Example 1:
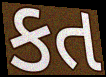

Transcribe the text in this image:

કત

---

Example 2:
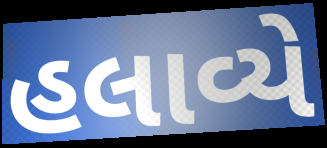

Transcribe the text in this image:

હલાવ્યે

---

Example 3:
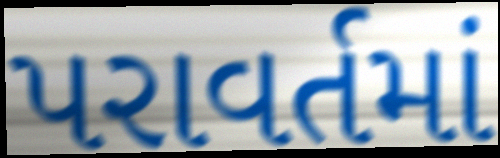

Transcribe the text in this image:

પરાવર્તમાં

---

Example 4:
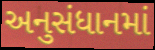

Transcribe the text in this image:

અનુસંધાનમાં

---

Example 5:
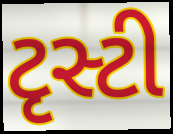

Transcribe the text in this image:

ટૃસ્ટી